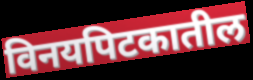
विनयपिटकातील